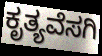
ಕೃತ್ಯವೆಸಗಿ